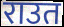
राउत